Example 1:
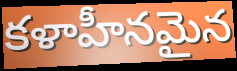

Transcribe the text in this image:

కళాహీనమైన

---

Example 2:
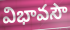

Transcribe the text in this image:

విభావసౌ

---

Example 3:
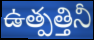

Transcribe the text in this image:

ఉత్పత్తినీ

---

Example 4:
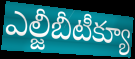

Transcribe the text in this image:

ఎల్జీబీటీక్యూ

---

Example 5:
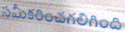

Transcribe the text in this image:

సమీకరించగలిగింది